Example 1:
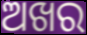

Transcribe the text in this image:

ଅଖର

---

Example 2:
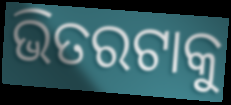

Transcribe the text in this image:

ଭିତରଟାକୁ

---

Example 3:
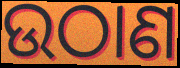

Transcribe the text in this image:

ଉଠାଣ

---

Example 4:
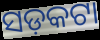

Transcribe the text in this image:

ସଡ଼କଟା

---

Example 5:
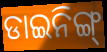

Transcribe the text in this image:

ଡାଇନିଙ୍ଗ୍